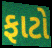
ફાટો